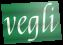
vegli